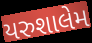
યરુશાલેમ